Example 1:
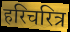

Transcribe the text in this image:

हरिचरित्र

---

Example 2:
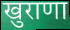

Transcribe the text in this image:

खुराणा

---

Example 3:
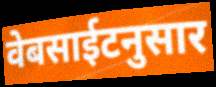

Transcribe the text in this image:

वेबसाईटनुसार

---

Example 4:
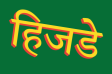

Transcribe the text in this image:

हिजडे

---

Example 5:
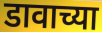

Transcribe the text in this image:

डावाच्या